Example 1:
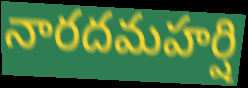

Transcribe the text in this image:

నారదమహర్షి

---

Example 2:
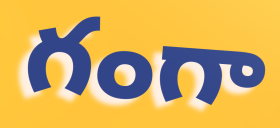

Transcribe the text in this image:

గంగా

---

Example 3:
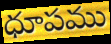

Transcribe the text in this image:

ధూపము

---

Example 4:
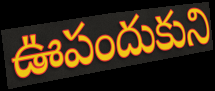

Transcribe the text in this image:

ఊపందుకుని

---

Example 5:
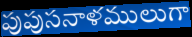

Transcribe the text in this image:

పుపుసనాళములుగా